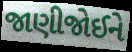
જાણીજોઈને